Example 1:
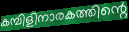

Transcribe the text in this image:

കമ്പിളിനാരകത്തിന്റെ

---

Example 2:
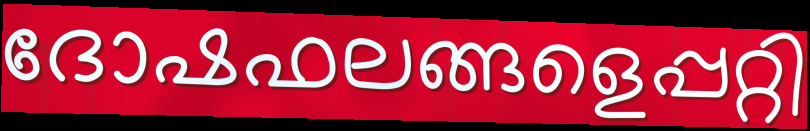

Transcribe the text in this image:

ദോഷഫലങ്ങളെപ്പറ്റി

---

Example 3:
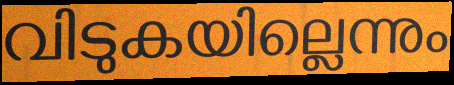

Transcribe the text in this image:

വിടുകയില്ലെന്നും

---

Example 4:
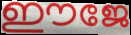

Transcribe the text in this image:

ഈജേ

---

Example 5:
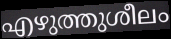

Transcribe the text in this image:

എഴുത്തുശീലം